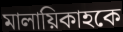
মালায়িকাহকে